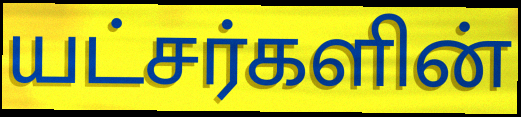
யட்சர்களின்